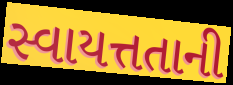
સ્વાયત્તતાની